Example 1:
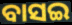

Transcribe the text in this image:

ବାସଇ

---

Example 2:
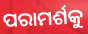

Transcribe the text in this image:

ପରାମର୍ଶକୁ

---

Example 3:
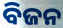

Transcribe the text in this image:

ବିଜନ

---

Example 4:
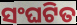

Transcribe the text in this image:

ସଂଘଟିତ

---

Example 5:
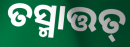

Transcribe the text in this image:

ତସ୍ମାତ୍ତତ୍